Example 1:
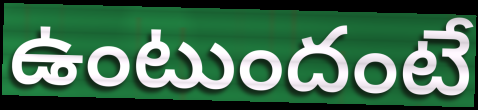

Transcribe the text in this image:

ఉంటుందంటే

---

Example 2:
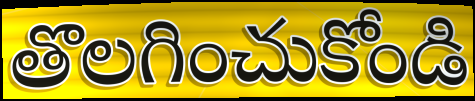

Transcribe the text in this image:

తొలగించుకోండి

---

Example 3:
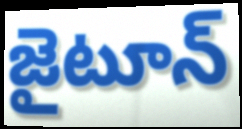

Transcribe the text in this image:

జైటూన్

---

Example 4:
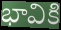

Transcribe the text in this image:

భావికి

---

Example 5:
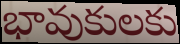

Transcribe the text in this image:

భావుకులకు